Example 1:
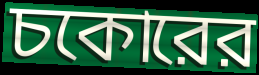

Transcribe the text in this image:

চকোরের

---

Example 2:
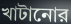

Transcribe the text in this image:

খাটানোর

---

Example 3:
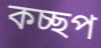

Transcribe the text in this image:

কচ্ছপ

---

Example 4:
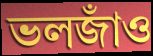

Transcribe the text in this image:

ভলজাঁও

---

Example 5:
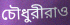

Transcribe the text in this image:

চৌধুরীরাও